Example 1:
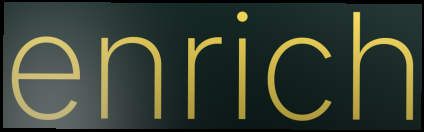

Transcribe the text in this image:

enrich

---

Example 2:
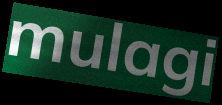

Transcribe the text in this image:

mulagi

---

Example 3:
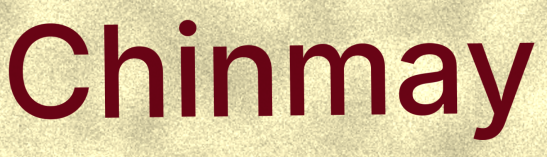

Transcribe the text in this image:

Chinmay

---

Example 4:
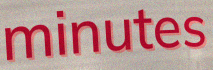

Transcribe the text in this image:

minutes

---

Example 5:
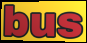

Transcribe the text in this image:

bus